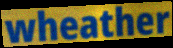
wheather